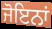
ਜੋਇਨਾਂ